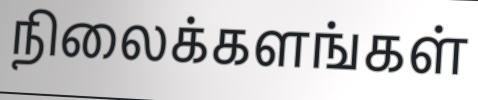
நிலைக்களங்கள்